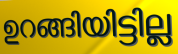
ഉറങ്ങിയിട്ടില്ല